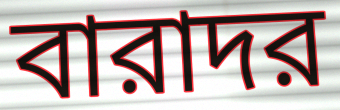
বারাদর